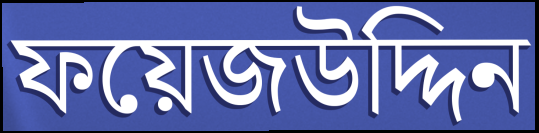
ফয়েজউদ্দিন